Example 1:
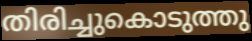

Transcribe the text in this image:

തിരിച്ചുകൊടുത്തു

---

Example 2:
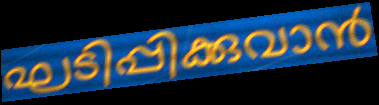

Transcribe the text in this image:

ഘടിപ്പിക്കുവാൻ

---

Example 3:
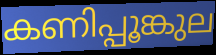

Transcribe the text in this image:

കണിപ്പൂങ്കുല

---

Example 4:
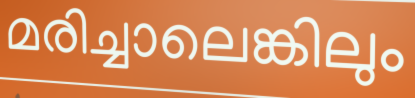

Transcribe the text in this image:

മരിച്ചാലെങ്കിലും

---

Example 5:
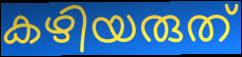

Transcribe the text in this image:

കഴിയരുത്